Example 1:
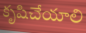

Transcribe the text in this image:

కృషిచేయాలి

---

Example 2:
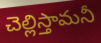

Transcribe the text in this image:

చెల్లిస్తామనీ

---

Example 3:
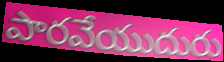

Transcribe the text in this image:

పారవేయుదురు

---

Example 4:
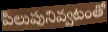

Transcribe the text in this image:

పిలుపునివ్వటంతో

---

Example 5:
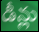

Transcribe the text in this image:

డీన్లు